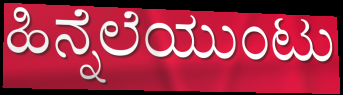
ಹಿನ್ನೆಲೆಯುಂಟು